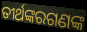
ତୀର୍ଥଙ୍କରଗଣଙ୍କ